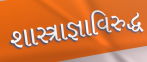
શાસ્ત્રાજ્ઞાવિરુદ્ધ